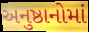
અનુષ્ઠાનોમાં